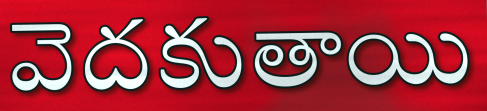
వెదకుతాయి